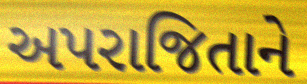
અપરાજિતાને